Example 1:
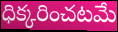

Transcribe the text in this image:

ధిక్కరించటమే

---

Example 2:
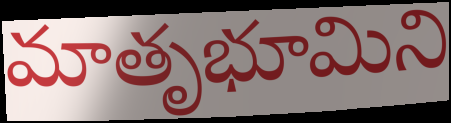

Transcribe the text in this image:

మాతృభూమిని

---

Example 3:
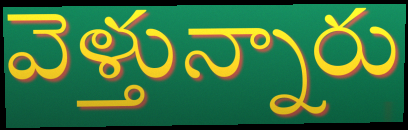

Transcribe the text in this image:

వెళ్తున్నారు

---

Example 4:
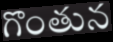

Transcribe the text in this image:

గొంతున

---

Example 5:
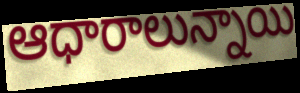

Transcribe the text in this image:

ఆధారాలున్నాయి